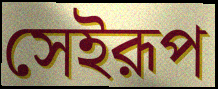
সেইরূপ